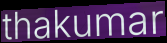
thakumar